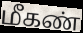
மீகண்